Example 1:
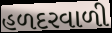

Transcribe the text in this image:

હળદરવાળી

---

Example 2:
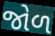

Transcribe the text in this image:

જોળ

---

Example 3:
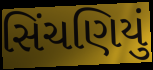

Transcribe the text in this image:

સિંચણિયું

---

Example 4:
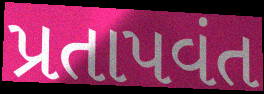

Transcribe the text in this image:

પ્રતાપવંત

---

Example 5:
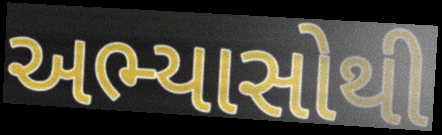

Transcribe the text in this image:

અભ્યાસોથી